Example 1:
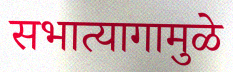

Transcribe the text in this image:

सभात्यागामुळे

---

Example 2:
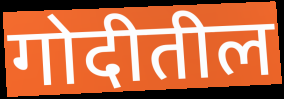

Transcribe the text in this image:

गोदीतील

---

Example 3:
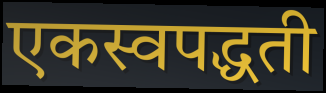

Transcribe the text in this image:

एकस्वपद्धती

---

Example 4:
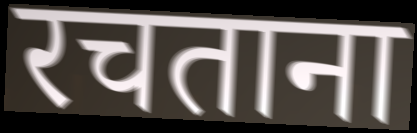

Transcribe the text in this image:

रचताना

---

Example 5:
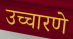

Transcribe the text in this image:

उच्चारणे